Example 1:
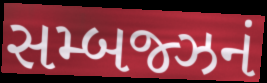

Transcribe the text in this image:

સમ્બજ્ઝનં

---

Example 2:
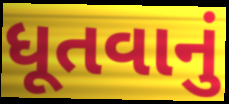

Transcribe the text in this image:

ધૂતવાનું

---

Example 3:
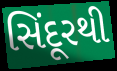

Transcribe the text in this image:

સિંદૂરથી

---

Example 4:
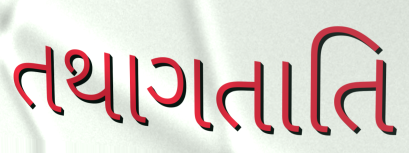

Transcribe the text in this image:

તથાગતાતિ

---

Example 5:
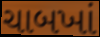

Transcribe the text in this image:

ચાબખાં